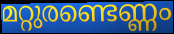
മറ്റുരണ്ടെണ്ണം